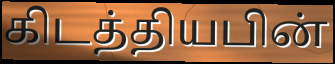
கிடத்தியபின்